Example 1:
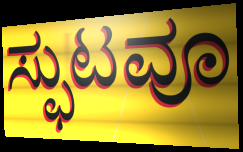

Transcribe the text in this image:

ಸ್ಫುಟವೂ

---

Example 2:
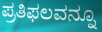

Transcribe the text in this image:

ಪ್ರತಿಫಲವನ್ನೂ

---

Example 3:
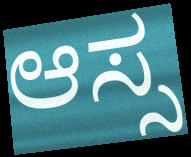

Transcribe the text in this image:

ಆಸ್ಸ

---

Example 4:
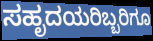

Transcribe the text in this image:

ಸಹೃದಯರಿಬ್ಬರಿಗೂ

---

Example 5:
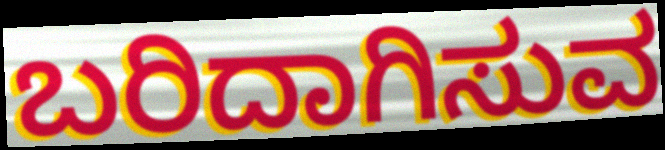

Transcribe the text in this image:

ಬರಿದಾಗಿಸುವ